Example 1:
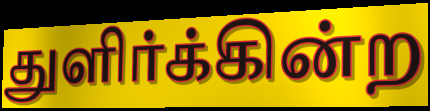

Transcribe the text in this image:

துளிர்க்கின்ற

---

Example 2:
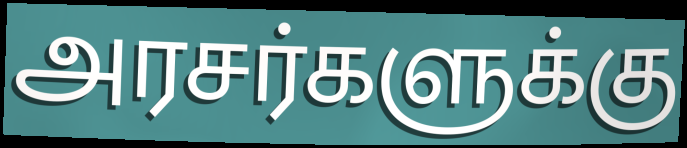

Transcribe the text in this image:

அரசர்களுக்கு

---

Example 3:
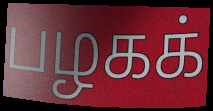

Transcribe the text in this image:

பழகக்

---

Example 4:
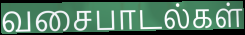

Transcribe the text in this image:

வசைபாடல்கள்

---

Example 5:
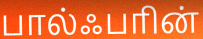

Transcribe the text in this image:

பால்ஃபரின்